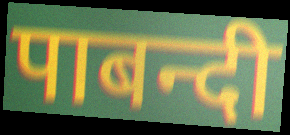
पाबन्दी